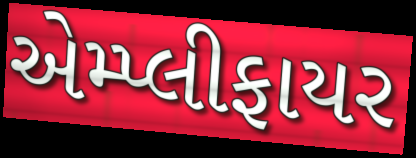
એમ્પ્લીફાયર